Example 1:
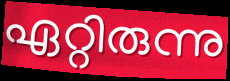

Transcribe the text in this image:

ഏറ്റിരുന്നു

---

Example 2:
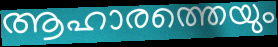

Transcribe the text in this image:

ആഹാരത്തെയും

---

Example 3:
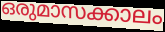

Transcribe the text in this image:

ഒരുമാസക്കാലം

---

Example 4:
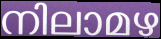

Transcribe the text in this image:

നിലാമഴ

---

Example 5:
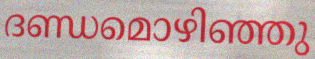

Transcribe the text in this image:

ദണ്ഡമൊഴിഞ്ഞു